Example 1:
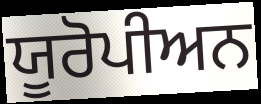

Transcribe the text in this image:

ਯੂਰੋਪੀਅਨ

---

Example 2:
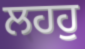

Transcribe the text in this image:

ਲਹਹੁ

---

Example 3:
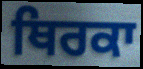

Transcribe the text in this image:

ਥਿਰਕਾ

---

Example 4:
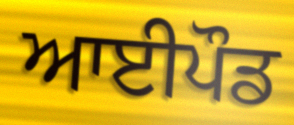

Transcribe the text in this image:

ਆਈਪੌਡ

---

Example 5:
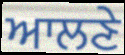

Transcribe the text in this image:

ਆਲਣੇ